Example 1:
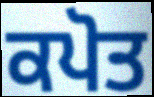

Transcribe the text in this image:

ਕਪੋਤ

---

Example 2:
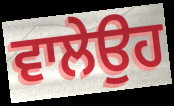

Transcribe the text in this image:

ਵਾਲੇਉਹ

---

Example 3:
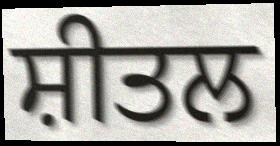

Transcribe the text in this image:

ਸ਼ੀਤਲ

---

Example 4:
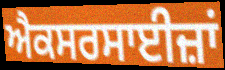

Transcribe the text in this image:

ਐਕਸਰਸਾਈਜ਼ਾਂ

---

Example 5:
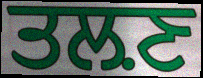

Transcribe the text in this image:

ਤਲ਼ਣ